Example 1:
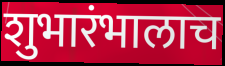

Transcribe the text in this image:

शुभारंभालाच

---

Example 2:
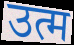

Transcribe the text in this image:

उत्म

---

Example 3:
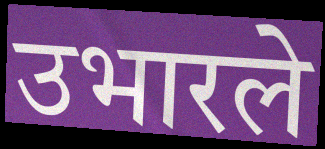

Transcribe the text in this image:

उभारले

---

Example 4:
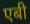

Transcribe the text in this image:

एबी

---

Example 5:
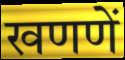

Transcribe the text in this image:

खणणें